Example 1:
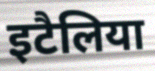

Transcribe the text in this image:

इटैलिया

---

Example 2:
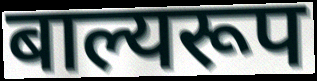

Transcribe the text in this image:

बाल्यरूप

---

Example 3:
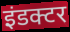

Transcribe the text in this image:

इंडक्टर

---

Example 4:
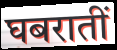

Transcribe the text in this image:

घबरातीं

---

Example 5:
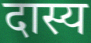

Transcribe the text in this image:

दास्य